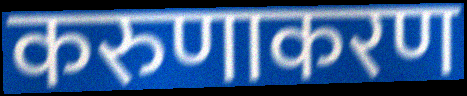
करुणाकरण